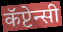
कॅप्टेन्सी